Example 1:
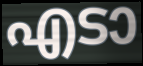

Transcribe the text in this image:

എടാ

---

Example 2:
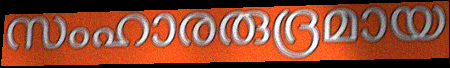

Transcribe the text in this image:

സംഹാരരുദ്രമായ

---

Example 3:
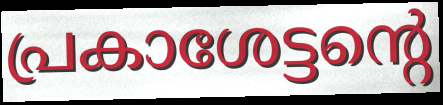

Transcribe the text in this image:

പ്രകാശേട്ടന്റെ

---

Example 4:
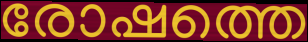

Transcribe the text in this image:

രോഷത്തെ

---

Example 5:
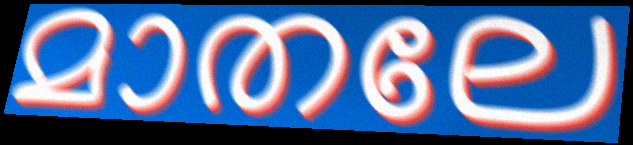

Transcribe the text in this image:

മാതലേ